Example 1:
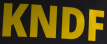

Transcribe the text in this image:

KNDF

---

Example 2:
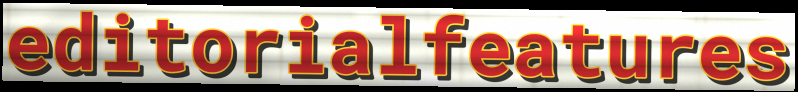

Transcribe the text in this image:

editorialfeatures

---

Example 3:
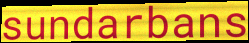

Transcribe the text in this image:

sundarbans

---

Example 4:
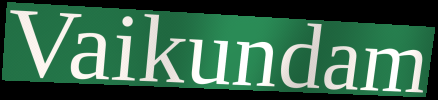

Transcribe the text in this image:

Vaikundam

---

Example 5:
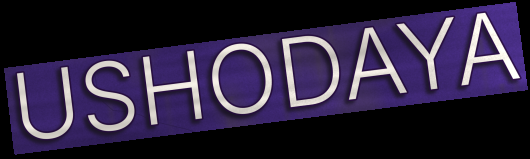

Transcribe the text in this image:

USHODAYA